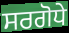
ਸਰਗੋਧੇ